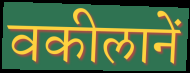
वकीलानें